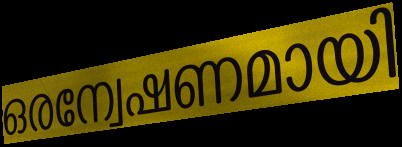
ഒരന്വേഷണമായി